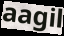
aagil